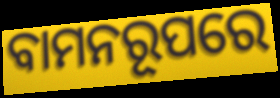
ବାମନରୂପରେ